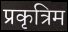
प्रकृत्रिम